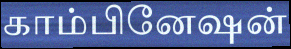
காம்பினேஷன்